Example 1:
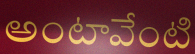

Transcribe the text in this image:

అంటావేంటి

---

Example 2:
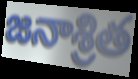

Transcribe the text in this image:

జనాశ్రిత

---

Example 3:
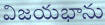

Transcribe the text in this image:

విజయభాను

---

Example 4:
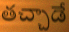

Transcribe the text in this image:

తచ్చాడే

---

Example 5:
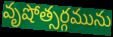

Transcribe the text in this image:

వృషోత్సర్గమును